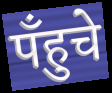
पँहुचे